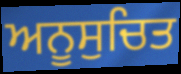
ਅਨੂਸੁਚਿਤ